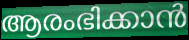
ആരംഭിക്കാൻ